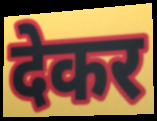
देकर